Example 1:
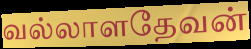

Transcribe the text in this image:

வல்லாளதேவன்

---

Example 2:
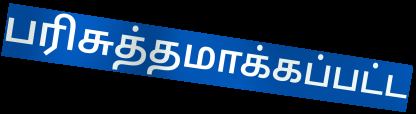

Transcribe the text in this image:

பரிசுத்தமாக்கப்பட்ட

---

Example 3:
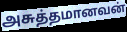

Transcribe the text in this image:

அசுத்தமானவன்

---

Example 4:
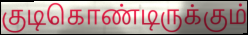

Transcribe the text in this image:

குடிகொண்டிருக்கும்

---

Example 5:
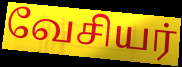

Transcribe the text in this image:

வேசியர்